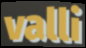
valli